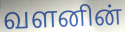
வளனின்